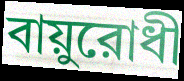
বায়ুরোধী